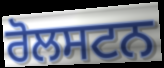
ਰੋਲਸਟਨ